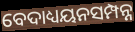
ବେଦାଧ୍ୟୟନସମ୍ପନ୍ନ